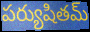
పర్యుషితమ్